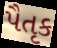
પૈતૃક